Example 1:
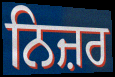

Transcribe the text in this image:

ਨਿਜ਼ਰ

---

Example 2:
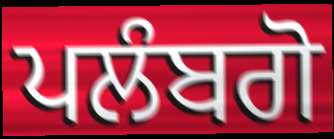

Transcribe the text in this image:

ਪਲੰਬਗੋ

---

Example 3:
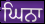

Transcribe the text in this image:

ਘਿਨਾ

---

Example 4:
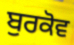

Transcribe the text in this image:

ਬੁਰਕੋਵ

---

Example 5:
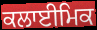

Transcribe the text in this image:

ਕਲਾਈਮਿਕ